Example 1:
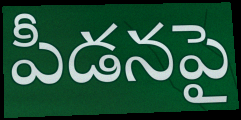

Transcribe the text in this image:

పీడనపై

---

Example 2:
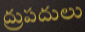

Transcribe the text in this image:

ద్రుపదులు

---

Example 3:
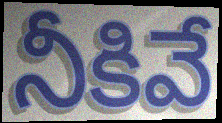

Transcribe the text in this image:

నీకివే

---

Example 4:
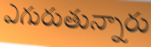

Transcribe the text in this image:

ఎగురుతున్నారు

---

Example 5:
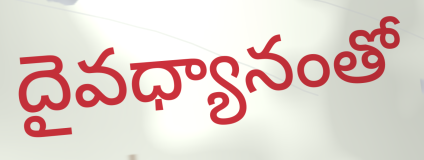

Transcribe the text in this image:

దైవధ్యానంతో